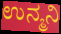
ಉನ್ಮನಿ